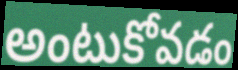
అంటుకోవడం